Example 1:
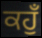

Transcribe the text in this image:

ਕਹੁਁ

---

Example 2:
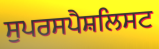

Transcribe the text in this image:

ਸੁਪਰਸਪੈਸ਼ਲਿਸਟ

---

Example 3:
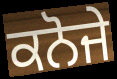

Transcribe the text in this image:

ਕਨੋਜੇ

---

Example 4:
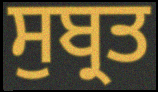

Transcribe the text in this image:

ਸੁਬ੍ਰਤ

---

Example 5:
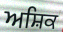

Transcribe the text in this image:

ਅਸ਼ਿਕ